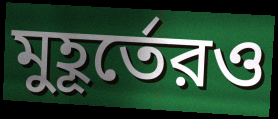
মুহূর্তেরও